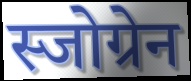
स्जोग्रेन